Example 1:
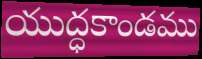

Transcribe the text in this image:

యుద్ధకాండము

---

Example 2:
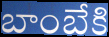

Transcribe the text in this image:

బాంబేకి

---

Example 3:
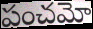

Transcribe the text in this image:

పంచమో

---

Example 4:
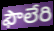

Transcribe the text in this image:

ఫౌలేరి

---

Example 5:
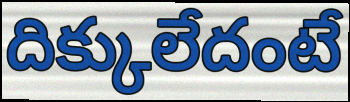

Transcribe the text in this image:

దిక్కులేదంటే